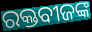
ରକ୍ତବୀଜଙ୍କ